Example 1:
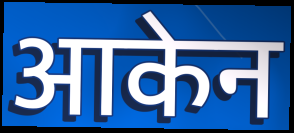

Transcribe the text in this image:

आकेन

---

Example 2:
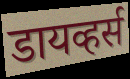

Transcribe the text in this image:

डायव्हर्स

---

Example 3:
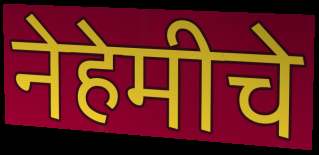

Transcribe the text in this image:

नेहेमीचे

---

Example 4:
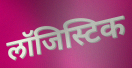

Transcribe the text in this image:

लॉजिस्टिक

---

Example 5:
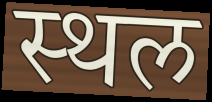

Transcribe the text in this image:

स्थल